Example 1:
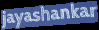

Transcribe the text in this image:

jayashankar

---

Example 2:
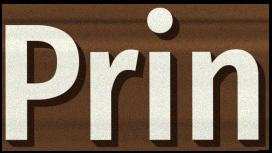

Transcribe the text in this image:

Prin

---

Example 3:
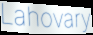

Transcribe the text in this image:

Lahovary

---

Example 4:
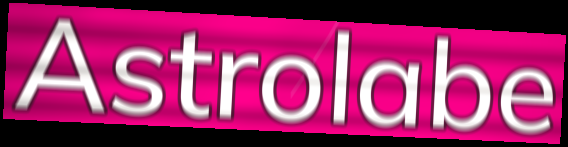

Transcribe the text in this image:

Astrolabe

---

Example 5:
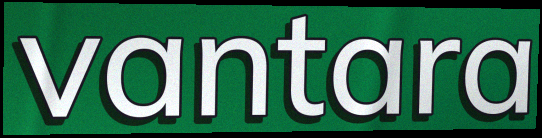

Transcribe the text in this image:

vantara